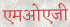
एमओएजी